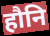
हौनि